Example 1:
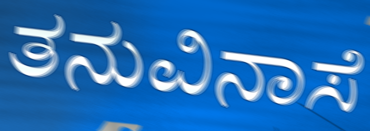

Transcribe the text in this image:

ತನುವಿನಾಸೆ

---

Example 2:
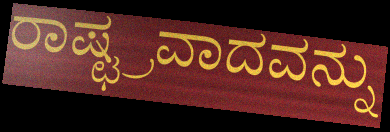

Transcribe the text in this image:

ರಾಷ್ಟ್ರವಾದವನ್ನು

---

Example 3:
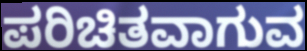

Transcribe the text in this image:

ಪರಿಚಿತವಾಗುವ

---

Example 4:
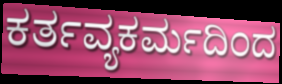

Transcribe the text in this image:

ಕರ್ತವ್ಯಕರ್ಮದಿಂದ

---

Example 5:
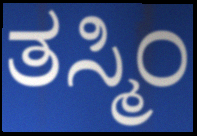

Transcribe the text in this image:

ತಸ್ಮಿಂ